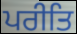
ਪਰੀਤਿ